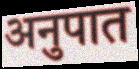
अनुपात